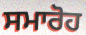
ਸਮਾਰੋਹ